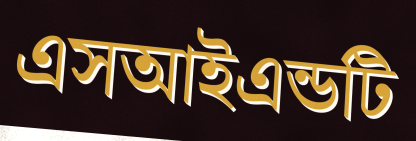
এসআইএন্ডটি